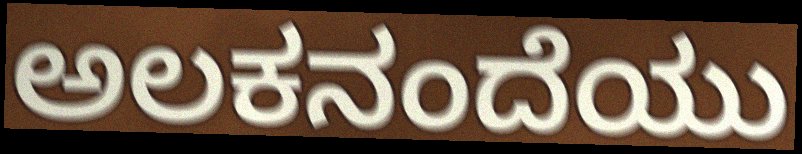
ಅಲಕನಂದೆಯು